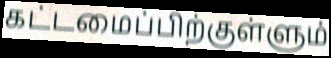
கட்டமைப்பிற்குள்ளும்